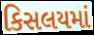
કિસલયમાં